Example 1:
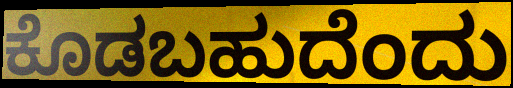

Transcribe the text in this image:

ಕೊಡಬಹುದೆಂದು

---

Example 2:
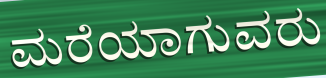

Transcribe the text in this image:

ಮರೆಯಾಗುವರು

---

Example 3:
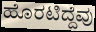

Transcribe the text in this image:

ಹೊರಟಿದ್ದೆವು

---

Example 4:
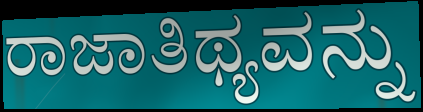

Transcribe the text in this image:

ರಾಜಾತಿಥ್ಯವನ್ನು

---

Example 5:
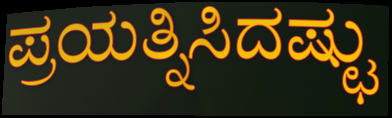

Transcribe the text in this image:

ಪ್ರಯತ್ನಿಸಿದಷ್ಟು